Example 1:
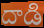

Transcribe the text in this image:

దాడి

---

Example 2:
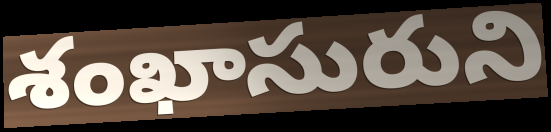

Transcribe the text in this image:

శంఖాసురుని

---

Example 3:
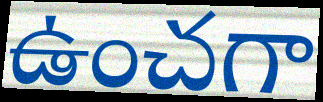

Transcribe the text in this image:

ఉంచగా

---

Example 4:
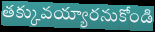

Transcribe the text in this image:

తక్కువయ్యారనుకోండి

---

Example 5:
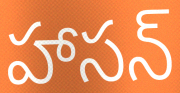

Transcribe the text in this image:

హాసన్